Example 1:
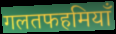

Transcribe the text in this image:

गलतफहमियाँ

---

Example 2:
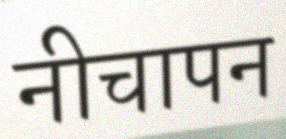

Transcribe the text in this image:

नीचापन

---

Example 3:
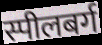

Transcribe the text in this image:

स्पीलबर्ग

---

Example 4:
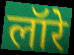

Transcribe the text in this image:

लॉरे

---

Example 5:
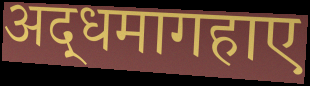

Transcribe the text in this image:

अद्धमागहाए